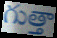
గుత్తా